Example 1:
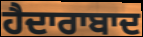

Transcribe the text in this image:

ਹੈਦਾਰਾਬਾਦ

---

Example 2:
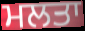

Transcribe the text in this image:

ਮਲਤਾ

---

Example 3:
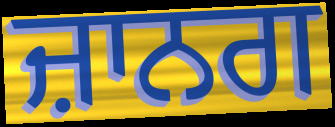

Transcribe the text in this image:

ਜ਼ਾਨਗ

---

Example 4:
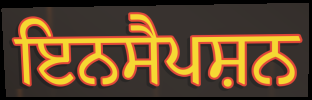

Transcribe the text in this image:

ਇਨਸੈਪਸ਼ਨ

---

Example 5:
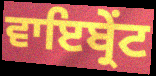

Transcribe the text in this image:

ਵਾਇਬ੍ਰੇਂਟ